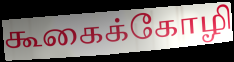
கூகைக்கோழி